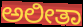
ಅಲೀತಾ